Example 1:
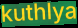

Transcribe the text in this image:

kuthlya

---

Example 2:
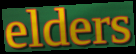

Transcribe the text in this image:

elders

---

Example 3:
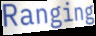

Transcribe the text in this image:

Ranging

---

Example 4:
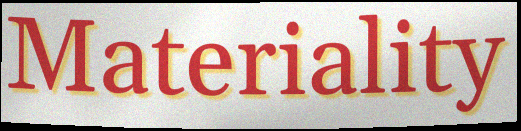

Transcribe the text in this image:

Materiality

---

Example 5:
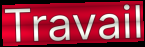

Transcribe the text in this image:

Travail